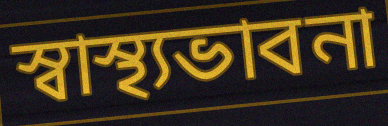
স্বাস্থ্যভাবনা